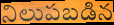
నిలుపబడిన